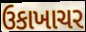
ઉકાખાચર